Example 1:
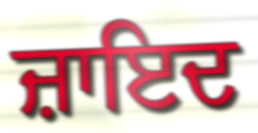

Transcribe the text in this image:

ਜ਼ਾਇਦ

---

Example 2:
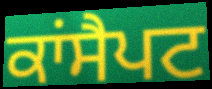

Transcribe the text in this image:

ਕਾਂਸੈਪਟ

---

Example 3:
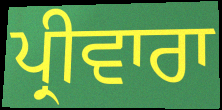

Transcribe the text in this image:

ਪ੍ਰੀਵਾਰਾ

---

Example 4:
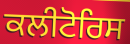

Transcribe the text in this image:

ਕਲੀਟੋਰਿਸ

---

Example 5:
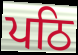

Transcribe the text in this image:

ਪਠਿ